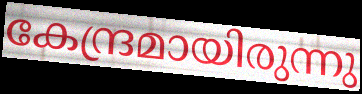
കേന്ദ്രമായിരുന്നു